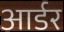
आर्डर